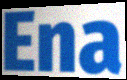
Ena